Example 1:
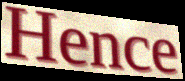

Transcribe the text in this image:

Hence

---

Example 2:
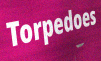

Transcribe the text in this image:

Torpedoes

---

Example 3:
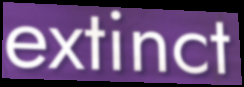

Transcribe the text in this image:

extinct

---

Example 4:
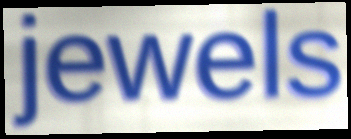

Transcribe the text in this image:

jewels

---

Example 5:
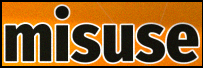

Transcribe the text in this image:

misuse